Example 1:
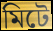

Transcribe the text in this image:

মিটে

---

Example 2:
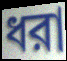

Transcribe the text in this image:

ধরা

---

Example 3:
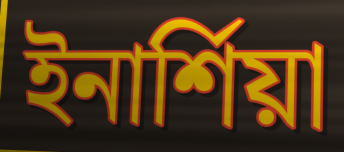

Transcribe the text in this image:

ইনার্শিয়া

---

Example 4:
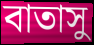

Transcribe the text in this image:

বাতাসু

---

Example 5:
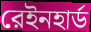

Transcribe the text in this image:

রেইনহার্ড